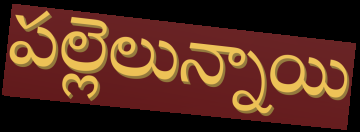
పల్లెలున్నాయి